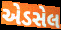
એડસેલ